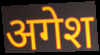
अगेश